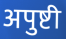
अपुष्टी